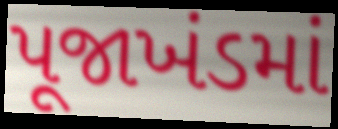
પૂજાખંડમાં